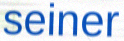
seiner